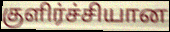
குளிர்ச்சியான